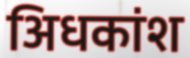
अिधकांश